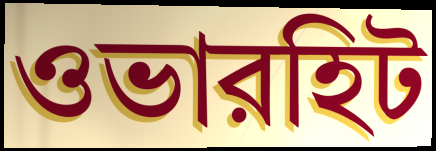
ওভারহিট